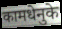
कामधेनुके